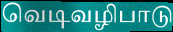
வெடிவழிபாடு